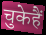
चुकेहैं